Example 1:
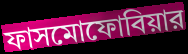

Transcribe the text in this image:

ফাসমোফোবিয়ার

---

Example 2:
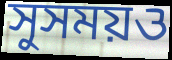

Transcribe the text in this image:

সুসময়ও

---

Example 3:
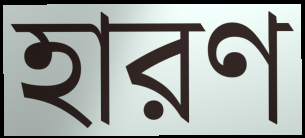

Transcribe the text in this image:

হারণ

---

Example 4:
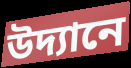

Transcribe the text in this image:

উদ্যানে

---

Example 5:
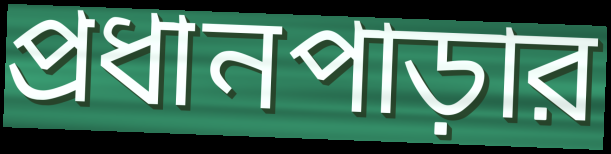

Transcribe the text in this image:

প্রধানপাড়ার